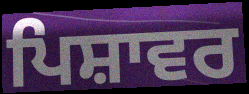
ਪਿਸ਼ਾਵਰ